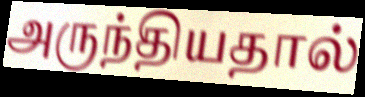
அருந்தியதால்